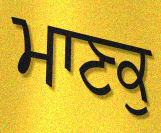
ਮਾਣਕੁ